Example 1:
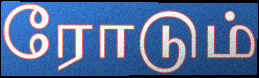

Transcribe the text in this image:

ரோடும்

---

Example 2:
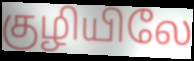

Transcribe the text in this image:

குழியிலே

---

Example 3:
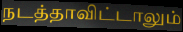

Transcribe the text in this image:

நடத்தாவிட்டாலும்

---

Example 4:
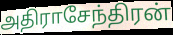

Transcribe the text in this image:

அதிராசேந்திரன்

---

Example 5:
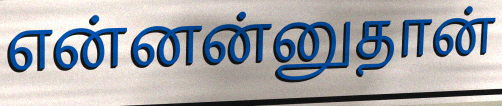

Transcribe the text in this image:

என்னன்னுதான்